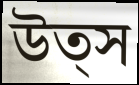
উত্স